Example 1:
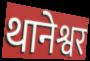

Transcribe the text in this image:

थानेश्वर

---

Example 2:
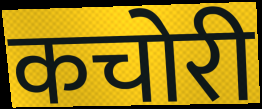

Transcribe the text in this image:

कचोरी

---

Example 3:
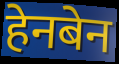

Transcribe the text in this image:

हेनबेन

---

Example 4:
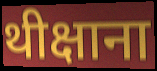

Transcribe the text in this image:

थीक्षाना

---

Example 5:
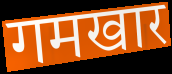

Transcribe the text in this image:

गमखार